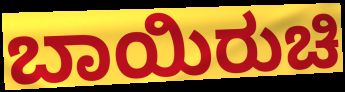
ಬಾಯಿರುಚಿ